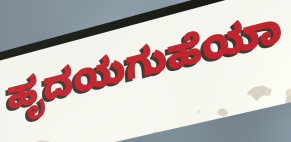
ಹೃದಯಗುಹೆಯಾ